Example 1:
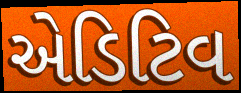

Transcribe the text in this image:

એડિટિવ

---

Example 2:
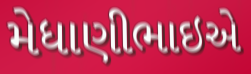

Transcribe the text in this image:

મેધાણીભાઇએ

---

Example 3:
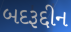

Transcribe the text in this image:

બદરૂદ્દીન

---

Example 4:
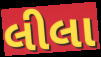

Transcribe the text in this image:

લીલા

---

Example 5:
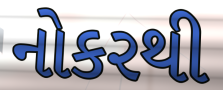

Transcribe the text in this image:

નોકરથી